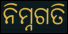
ନିମ୍ନଗତି